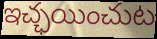
ఇచ్ఛయించుట